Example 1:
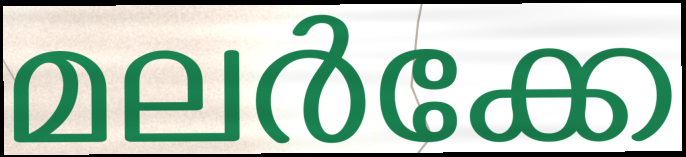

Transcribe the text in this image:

മലർക്കേ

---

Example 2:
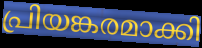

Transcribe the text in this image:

പ്രിയങ്കരമാക്കി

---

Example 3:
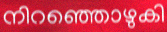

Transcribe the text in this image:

നിറഞ്ഞൊഴുകി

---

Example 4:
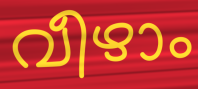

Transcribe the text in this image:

വീഴാം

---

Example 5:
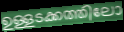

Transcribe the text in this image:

ഉള്ളടക്കത്തിലോ